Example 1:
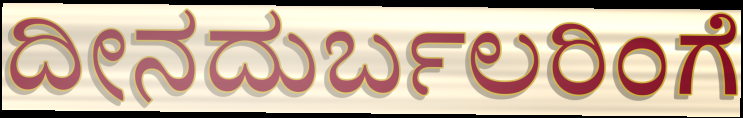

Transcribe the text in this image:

ದೀನದುರ್ಬಲರಿಂಗೆ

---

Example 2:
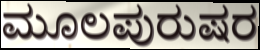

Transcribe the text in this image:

ಮೂಲಪುರುಷರ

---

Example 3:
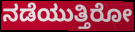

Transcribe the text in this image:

ನಡೆಯುತ್ತಿರೋ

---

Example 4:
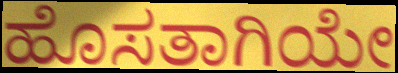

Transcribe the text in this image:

ಹೊಸತಾಗಿಯೇ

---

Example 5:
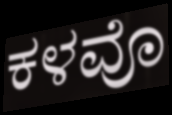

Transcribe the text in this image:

ಕಳವೊ